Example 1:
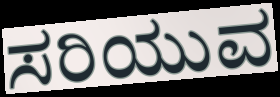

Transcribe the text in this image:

ಸರಿಯುವ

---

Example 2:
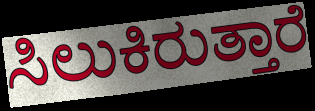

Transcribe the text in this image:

ಸಿಲುಕಿರುತ್ತಾರೆ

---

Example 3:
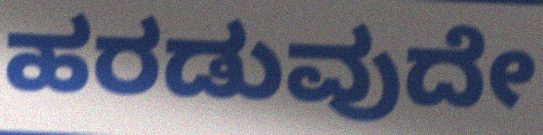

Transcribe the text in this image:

ಹರಡುವುದೇ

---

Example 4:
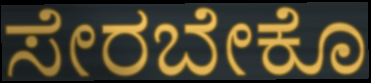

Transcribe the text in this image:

ಸೇರಬೇಕೊ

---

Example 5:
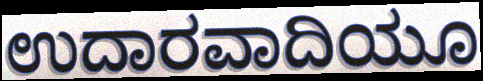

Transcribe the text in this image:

ಉದಾರವಾದಿಯೂ